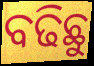
ବଢିଛୁ